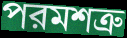
পরমশত্রু